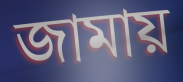
জামায়